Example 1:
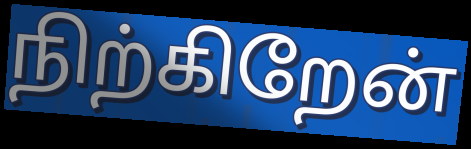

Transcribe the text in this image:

நிற்கிறேன்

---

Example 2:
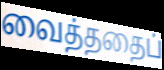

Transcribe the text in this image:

வைத்ததைப்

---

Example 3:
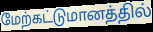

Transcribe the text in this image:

மேற்கட்டுமானத்தில்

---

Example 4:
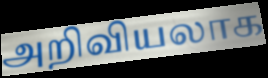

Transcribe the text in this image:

அறிவியலாக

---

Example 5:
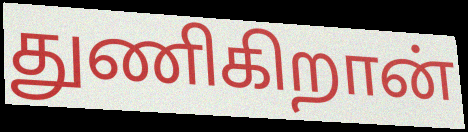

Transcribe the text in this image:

துணிகிறான்